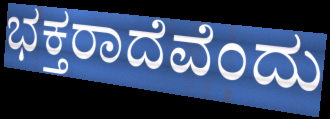
ಭಕ್ತರಾದೆವೆಂದು